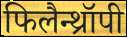
फिलैन्थ्रॉपी